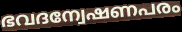
ഭവദന്വേഷണപരം